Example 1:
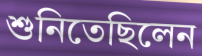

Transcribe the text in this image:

শুনিতেছিলেন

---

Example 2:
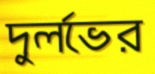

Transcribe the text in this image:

দুর্লভের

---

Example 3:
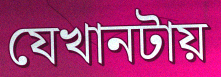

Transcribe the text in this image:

যেখানটায়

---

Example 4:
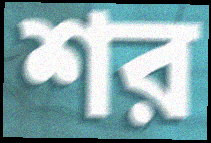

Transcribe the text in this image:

শর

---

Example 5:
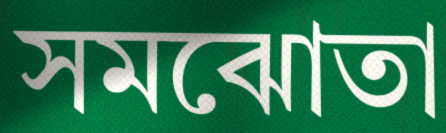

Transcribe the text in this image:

সমঝোতা